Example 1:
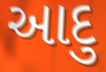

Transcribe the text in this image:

આદુ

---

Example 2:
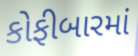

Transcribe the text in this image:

કોફીબારમાં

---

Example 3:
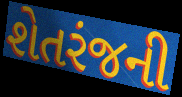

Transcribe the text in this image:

શેતરંજની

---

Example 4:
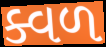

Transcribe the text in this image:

ક્વળ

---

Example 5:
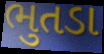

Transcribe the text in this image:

ભુતડા